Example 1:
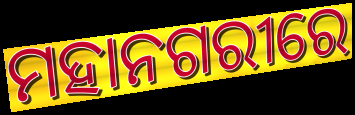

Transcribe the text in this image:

ମହାନଗରୀରେ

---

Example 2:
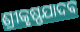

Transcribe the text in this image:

ଶ୍ରୀକୃଷ୍ଣଯାଦବ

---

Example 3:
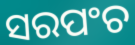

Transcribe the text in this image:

ସରପଂଚ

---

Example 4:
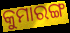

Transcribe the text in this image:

କୁମାରଙ୍ଗ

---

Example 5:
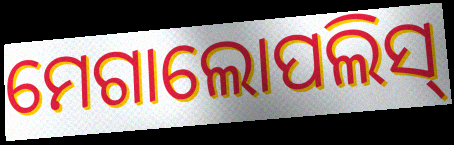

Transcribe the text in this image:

ମେଗାଲୋପଲିସ୍